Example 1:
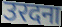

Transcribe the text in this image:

उरदना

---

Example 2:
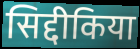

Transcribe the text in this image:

सिद्दीकिया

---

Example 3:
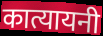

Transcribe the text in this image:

कात्यायनी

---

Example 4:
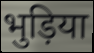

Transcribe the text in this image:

भुड़िया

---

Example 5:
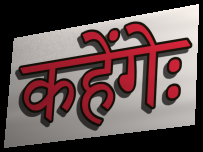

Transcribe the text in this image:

कहेंगेः